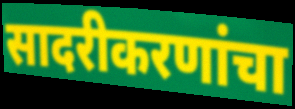
सादरीकरणांचा